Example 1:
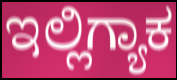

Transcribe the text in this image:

ಇಲ್ಲಿಗ್ಯಾಕ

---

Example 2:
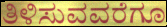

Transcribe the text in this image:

ತಿಳಿಸುವವರೆಗೂ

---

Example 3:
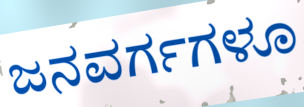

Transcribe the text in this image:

ಜನವರ್ಗಗಳೂ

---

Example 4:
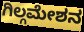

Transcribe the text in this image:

ಗಿಲ್ಗಮೇಶನ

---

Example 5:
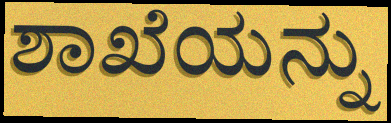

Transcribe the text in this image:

ಶಾಖೆಯನ್ನು